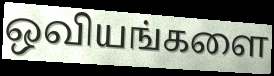
ஒவியங்களை